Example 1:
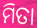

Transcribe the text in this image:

ମିତା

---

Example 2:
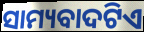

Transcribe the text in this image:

ସାମ୍ୟବାଦଟିଏ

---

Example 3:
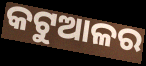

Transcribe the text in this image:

କଟୁଆଳର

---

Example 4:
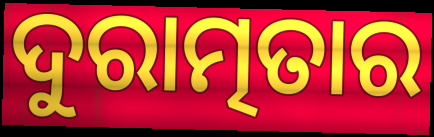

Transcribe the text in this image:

ଦୁରାତ୍ମତାର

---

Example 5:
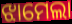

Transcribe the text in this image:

ଝାମେଲା